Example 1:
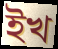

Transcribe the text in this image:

ইখ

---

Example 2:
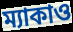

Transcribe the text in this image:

ম্যাকাও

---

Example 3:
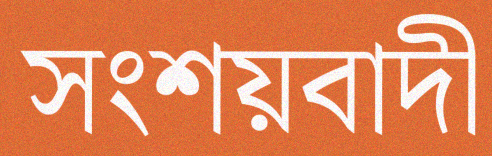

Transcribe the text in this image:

সংশয়বাদী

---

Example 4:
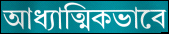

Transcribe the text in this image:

আধ্যাত্মিকভাবে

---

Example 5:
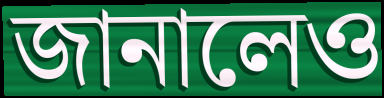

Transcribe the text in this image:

জানালেও